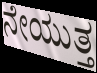
ನೇಯುತ್ತ